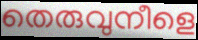
തെരുവുനീളെ